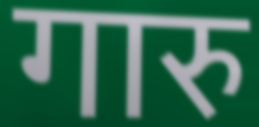
गारु